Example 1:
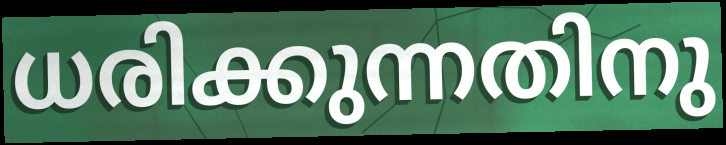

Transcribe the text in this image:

ധരിക്കുന്നതിനു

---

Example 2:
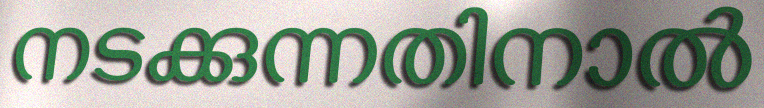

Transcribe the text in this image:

നടക്കുന്നതിനാൽ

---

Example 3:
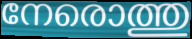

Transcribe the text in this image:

നേരൊത്തു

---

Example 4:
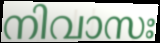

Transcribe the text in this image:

നിവാസഃ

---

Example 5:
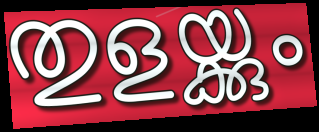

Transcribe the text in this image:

തുളയ്ക്കും